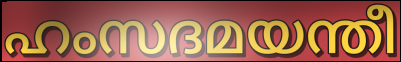
ഹംസദമയന്തീ